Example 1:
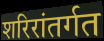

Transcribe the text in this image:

शरिरांतर्गत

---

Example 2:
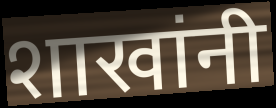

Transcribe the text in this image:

शाखांनी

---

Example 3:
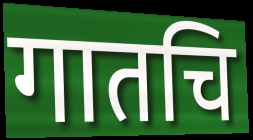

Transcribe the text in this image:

गातचि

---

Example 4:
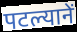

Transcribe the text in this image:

पटल्यानें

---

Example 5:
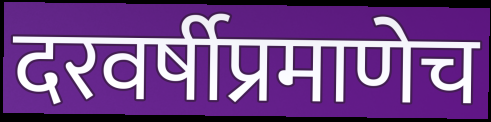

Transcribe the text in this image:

दरवर्षीप्रमाणेच